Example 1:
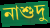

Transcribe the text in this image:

নাশুদু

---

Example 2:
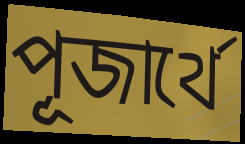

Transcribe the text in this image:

পূজার্থে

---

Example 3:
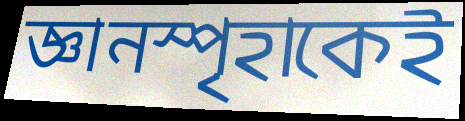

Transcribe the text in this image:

জ্ঞানস্পৃহাকেই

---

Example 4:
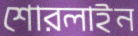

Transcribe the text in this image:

শোরলাইন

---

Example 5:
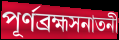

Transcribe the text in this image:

পূর্ণব্রহ্মসনাতনী